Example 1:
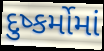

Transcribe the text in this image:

દુષ્કર્મોમાં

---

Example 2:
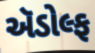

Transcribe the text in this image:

ઍડોલ્ફ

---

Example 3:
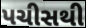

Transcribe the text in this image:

પચીસથી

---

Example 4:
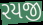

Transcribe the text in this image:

રયજી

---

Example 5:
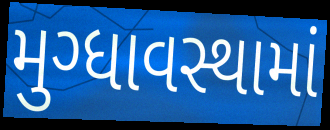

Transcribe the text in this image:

મુગ્ધાવસ્થામાં